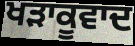
ਖੜਾਕੂਵਾਦ